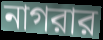
নাগরার